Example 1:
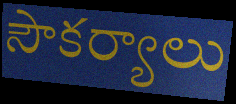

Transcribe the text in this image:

సౌకర్యాలు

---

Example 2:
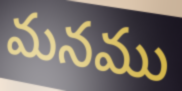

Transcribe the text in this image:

మనము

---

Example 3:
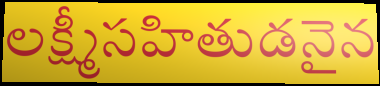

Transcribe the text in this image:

లక్ష్మీసహితుడనైన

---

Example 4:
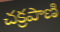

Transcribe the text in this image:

చక్రపాణి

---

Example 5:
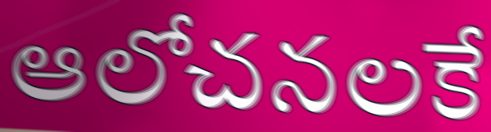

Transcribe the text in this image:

ఆలోచనలకే